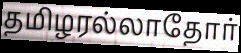
தமிழரல்லாதோர்